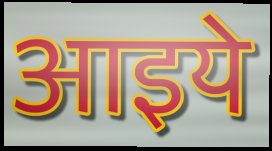
आइये